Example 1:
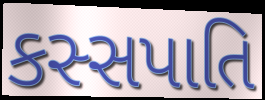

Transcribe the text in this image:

કસ્સપાતિ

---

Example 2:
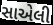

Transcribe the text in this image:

સાએલી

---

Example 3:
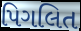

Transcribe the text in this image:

પિગલિત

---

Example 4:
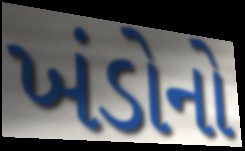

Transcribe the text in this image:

ખંડોનો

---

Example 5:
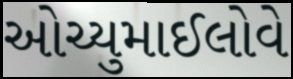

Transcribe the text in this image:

ઓચ્યુમાઈલોવે